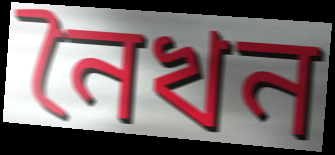
নৈখন